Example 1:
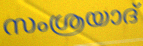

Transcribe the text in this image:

സംശ്രയാദ്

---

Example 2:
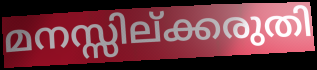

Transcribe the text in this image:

മനസ്സില്ക്കരുതി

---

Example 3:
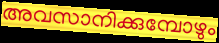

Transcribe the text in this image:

അവസാനിക്കുമ്പോഴും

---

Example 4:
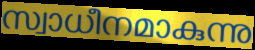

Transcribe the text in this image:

സ്വാധീനമാകുന്നു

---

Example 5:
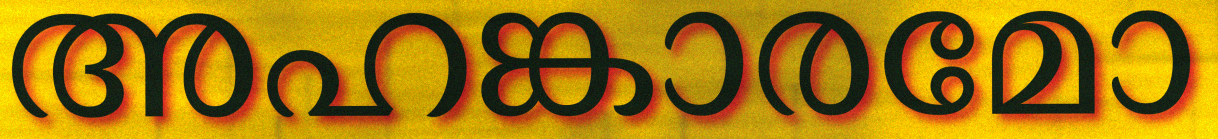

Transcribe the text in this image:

അഹങ്കാരമോ